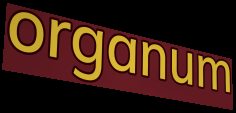
organum